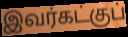
இவர்கட்குப்